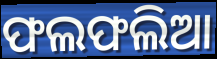
ଫଲଫଲିଆ